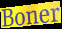
Boner